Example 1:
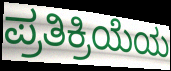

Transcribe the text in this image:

ಪ್ರತಿಕ್ರಿಯೆಯ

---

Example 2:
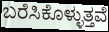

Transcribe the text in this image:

ಬರೆಸಿಕೊಳ್ಳುತ್ತವೆ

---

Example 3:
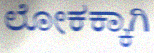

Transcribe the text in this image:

ಲೋಕಕ್ಕಾಗಿ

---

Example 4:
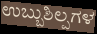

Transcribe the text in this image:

ಉಬ್ಬುಶಿಲ್ಪಗಳ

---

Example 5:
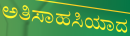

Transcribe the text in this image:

ಅತಿಸಾಹಸಿಯಾದ